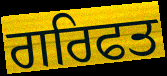
ਗਰਿਫਤ